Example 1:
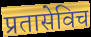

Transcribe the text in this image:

प्रतासेविच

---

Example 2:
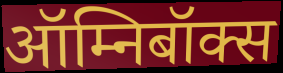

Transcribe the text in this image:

ऑम्निबॉक्स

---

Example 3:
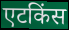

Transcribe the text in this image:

एटकिंस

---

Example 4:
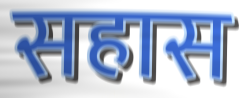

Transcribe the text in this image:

सहास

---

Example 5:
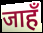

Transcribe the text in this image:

जाहँ